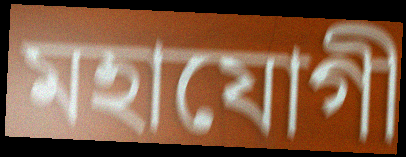
মহাযোগী